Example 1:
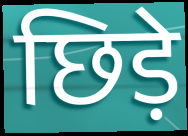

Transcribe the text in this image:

छिड़े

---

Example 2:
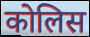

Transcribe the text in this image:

कोलिस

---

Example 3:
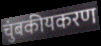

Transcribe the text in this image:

चुंबकीयकरण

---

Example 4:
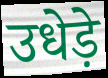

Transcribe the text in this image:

उधेड़े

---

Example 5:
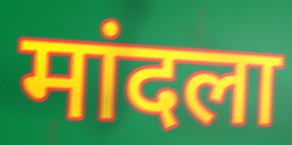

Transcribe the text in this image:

मांदला